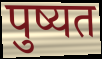
पुष्यत